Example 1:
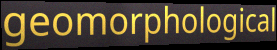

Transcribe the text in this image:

geomorphological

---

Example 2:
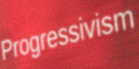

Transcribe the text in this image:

Progressivism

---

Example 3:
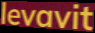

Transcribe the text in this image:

levavit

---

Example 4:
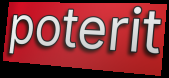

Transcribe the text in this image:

poterit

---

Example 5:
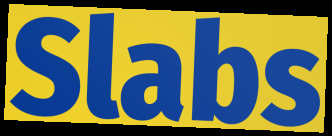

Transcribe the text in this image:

Slabs